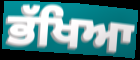
ਭੱਖਿਆ